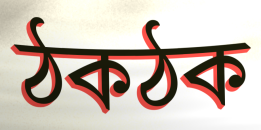
ঠকঠক